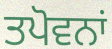
ਤਪੋਵਨਾਂ